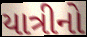
યાત્રીનો